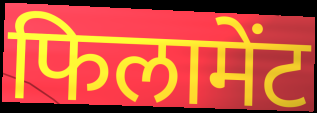
फिलामेंट